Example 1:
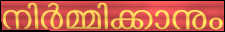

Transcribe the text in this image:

നിർമ്മിക്കാനും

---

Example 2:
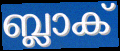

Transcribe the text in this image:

ബ്ലാക്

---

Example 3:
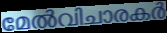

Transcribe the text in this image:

മേൽവിചാരകർ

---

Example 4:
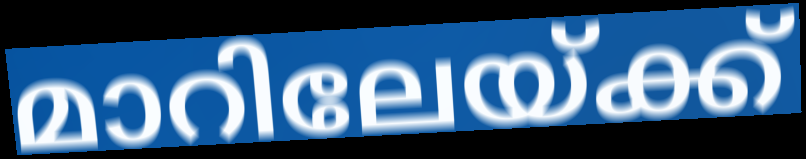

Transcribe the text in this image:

മാറിലേയ്ക്ക്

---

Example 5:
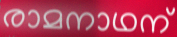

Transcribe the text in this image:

രാമനാഥന്